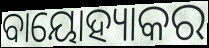
ବାୟୋହ୍ୟାକର